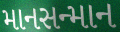
માનસન્માન